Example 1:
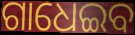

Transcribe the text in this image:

ଗାଧେଇବ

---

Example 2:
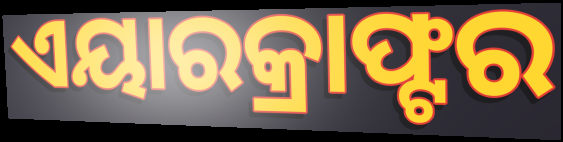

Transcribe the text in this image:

ଏୟାରକ୍ରାଫ୍ଟର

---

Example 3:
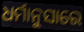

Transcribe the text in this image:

ଧର୍ମାନୁସାରେ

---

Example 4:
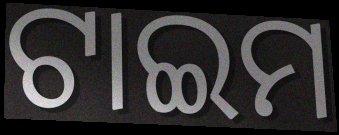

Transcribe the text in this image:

ଟାଇମ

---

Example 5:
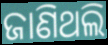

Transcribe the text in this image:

ଜାଣିଥଲି